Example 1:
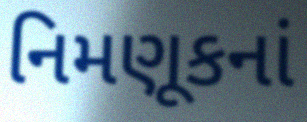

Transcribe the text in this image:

નિમણૂકનાં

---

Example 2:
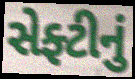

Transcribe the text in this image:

સેફ્ટીનું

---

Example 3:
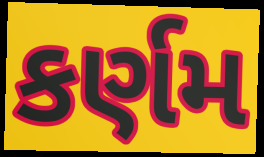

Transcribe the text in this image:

કર્ણમ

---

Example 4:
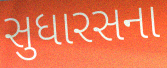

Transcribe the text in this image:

સુધારસના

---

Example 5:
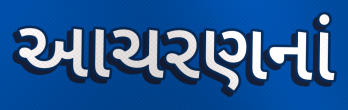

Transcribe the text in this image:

આચરણનાં